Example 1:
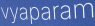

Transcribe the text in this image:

vyaparam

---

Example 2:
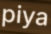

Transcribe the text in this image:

piya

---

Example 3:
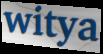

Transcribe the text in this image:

witya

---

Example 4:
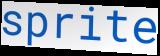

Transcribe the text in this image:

sprite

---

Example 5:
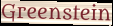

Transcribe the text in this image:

Greenstein